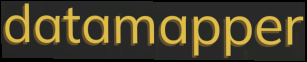
datamapper